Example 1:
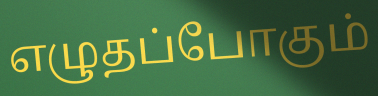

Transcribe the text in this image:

எழுதப்போகும்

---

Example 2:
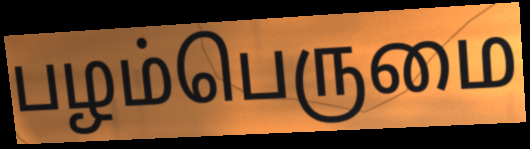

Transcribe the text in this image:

பழம்பெருமை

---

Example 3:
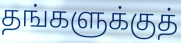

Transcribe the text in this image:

தங்களுக்குத்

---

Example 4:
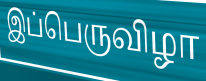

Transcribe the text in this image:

இப்பெருவிழா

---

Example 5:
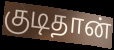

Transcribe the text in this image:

குடிதான்